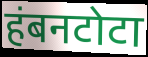
हंबनटोटा